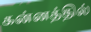
கன்னத்தில்